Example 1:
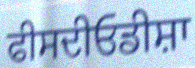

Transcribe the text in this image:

ਫੀਸਦੀਓਡੀਸ਼ਾ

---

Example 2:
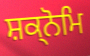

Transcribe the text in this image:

ਸ਼ਕ੍ਨੋਮਿ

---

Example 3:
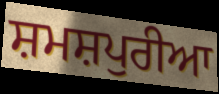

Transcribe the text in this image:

ਸ਼ਮਸ਼ਪੁਰੀਆ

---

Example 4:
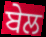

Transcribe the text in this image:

ਬੇਲ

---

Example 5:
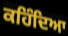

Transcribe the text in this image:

ਕਹਿੰਦਿਆ